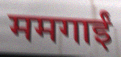
ममगाईं